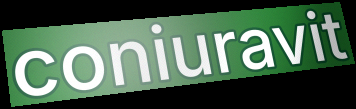
coniuravit